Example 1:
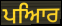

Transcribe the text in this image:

ਪਆਿਰ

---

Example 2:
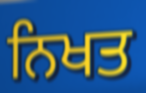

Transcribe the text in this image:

ਨਿਖਤ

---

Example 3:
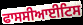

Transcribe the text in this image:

ਫਾਸਸੀਆਈਟਿਸ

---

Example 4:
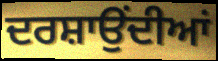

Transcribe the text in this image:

ਦਰਸ਼ਾਉਂਦੀਆਂ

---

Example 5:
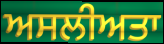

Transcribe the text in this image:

ਅਸਲੀਅਤਾ